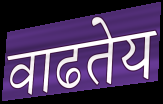
वाढतेय